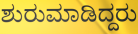
ಶುರುಮಾಡಿದ್ದರು